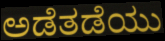
ಅಡೆತಡೆಯು